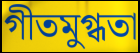
গীতমুগ্ধতা